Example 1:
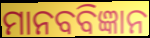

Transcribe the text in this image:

ମାନବବିଜ୍ଞାନ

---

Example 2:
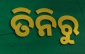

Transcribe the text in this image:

ତିନିରୁ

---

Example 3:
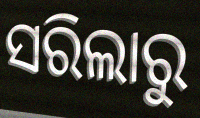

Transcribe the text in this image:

ସରିଲାରୁ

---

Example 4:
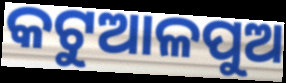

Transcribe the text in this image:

କଟୁଆଳପୁଅ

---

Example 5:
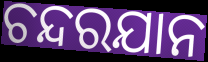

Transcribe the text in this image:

ଚନ୍ଦରଯାନ